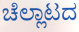
ಚೆಲ್ಲಾಟದ